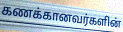
கணக்கானவர்களின்